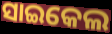
ସାଇକେଲ